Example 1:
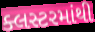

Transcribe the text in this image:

ક્લસ્ટરમાંથી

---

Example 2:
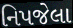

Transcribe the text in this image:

નિપજેલા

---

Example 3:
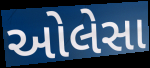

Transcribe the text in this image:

ઓલેસા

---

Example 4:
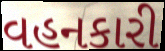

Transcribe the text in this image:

વહનકારી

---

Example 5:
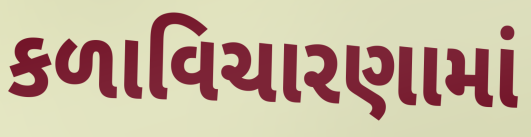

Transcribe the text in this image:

કળાવિચારણામાં